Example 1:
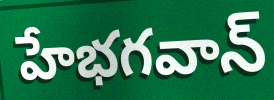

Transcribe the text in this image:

హేభగవాన్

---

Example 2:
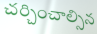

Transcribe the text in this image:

చర్చించాల్సిన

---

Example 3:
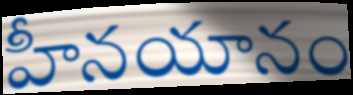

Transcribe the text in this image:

హీనయానం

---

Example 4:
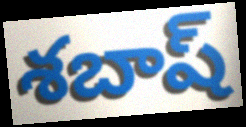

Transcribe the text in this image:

శబాష్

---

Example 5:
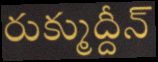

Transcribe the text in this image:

రుక్ముద్దీన్